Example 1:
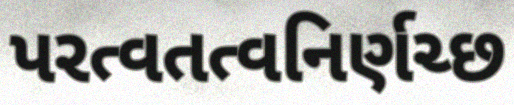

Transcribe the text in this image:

પરત્વતત્વનિર્ણચ્છ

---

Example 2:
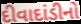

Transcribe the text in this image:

દીવાદાંડીનો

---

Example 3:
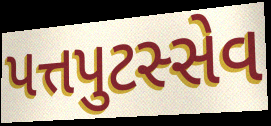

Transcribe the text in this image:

પત્તપુટસ્સેવ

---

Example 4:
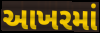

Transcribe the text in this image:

આખરમાં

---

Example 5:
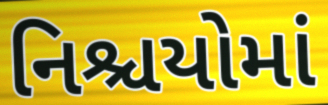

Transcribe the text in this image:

નિશ્ચયોમાં